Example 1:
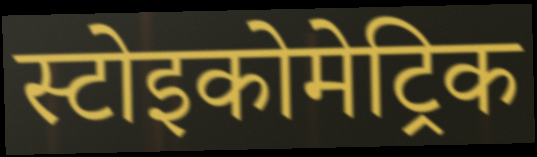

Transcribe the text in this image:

स्टोइकोमेट्रिक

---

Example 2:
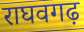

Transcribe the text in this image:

राघवगढ़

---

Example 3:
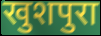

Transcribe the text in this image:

खुशपुरा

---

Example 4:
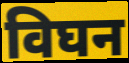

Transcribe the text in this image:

विघन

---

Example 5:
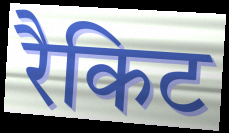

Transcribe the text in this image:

रैकिट